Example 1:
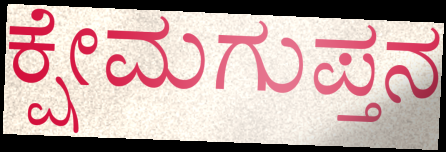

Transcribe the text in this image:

ಕ್ಷೇಮಗುಪ್ತನ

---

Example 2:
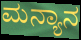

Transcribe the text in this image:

ಮನ್ಯಾನ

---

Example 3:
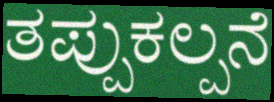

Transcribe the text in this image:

ತಪ್ಪುಕಲ್ಪನೆ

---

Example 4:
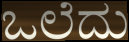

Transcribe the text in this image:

ಒಲೆದು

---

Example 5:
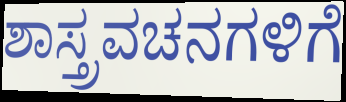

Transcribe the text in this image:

ಶಾಸ್ತ್ರವಚನಗಳಿಗೆ